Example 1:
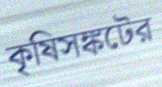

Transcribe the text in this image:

কৃষিসঙ্কটের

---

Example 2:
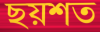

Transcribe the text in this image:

ছয়শত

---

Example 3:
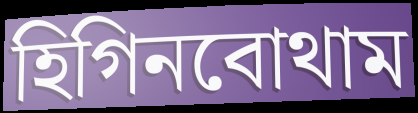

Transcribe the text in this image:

হিগিনবোথাম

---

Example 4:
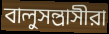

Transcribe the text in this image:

বালুসন্ত্রাসীরা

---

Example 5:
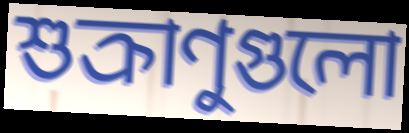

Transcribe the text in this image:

শুক্রাণুগুলো